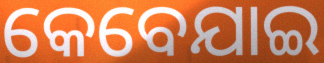
କେବେଯାଇ